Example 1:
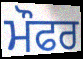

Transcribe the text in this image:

ਮੌਫਰ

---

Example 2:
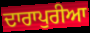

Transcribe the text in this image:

ਦਾਰਾਪੁਰੀਆ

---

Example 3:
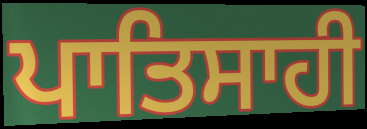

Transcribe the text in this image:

ਪਾਤਿਸਾਹੀ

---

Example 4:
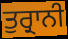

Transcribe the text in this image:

ਤੁਰ੍ਰਾਨੀ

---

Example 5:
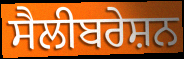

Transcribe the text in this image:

ਸੈਲੀਬਰੇਸ਼ਨ